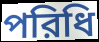
পরিধি